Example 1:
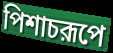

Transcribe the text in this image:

পিশাচরূপে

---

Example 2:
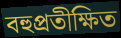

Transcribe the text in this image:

বহুপ্রতীক্ষিত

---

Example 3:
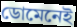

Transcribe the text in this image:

ডোমেনেই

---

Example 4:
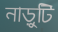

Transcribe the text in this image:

নাড়ুটি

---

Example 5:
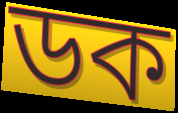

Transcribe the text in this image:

ডক